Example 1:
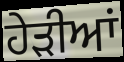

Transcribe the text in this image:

ਹੇੜੀਆਂ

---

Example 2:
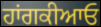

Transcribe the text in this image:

ਹਾਂਗਕੀਆਓ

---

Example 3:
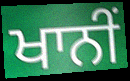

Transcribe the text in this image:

ਖਾਨੀਂ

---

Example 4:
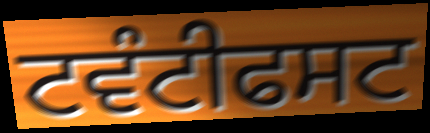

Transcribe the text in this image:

ਟਵੰਟੀਫਸਟ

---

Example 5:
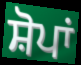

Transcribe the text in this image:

ਸ਼ੋਪਾਂ